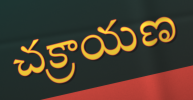
చక్రాయణ